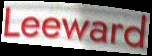
Leeward